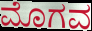
ಮೊಗವ